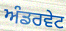
ਅੰਡਰਵੇਟ